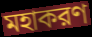
মহাকরণ